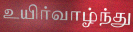
உயிர்வாழ்ந்து